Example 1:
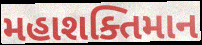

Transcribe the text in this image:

મહાશક્તિમાન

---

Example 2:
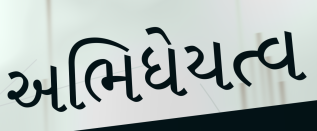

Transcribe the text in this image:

અભિધેયત્વ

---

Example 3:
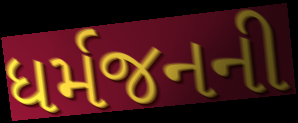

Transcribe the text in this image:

ધર્મજનની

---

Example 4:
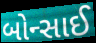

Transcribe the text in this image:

બોન્સાઈ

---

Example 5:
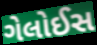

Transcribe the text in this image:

ગેલોઈસ